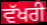
ਵੱਖਰੀ